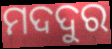
ମଦଦୁର